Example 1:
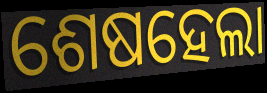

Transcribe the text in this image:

ଶେଷହେଲା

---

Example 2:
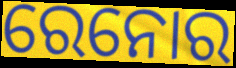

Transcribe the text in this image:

ରେନୋର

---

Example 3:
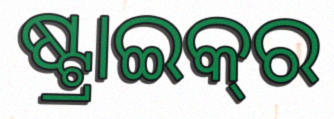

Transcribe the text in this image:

ଷ୍ଟ୍ରାଇକ୍‍ର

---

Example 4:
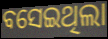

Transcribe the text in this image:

ବସେଇଥିଲା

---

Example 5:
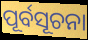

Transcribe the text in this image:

ପୂର୍ବସୂଚନା